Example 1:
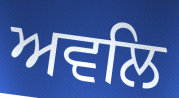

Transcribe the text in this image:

ਅਵਲਿ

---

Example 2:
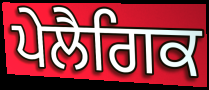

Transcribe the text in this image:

ਪੇਲੈਗਿਕ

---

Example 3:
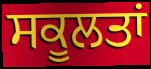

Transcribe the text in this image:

ਸਕੂਲਤਾਂ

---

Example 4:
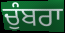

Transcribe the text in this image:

ਚੁੰਬਰਾ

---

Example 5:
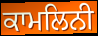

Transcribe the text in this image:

ਕਾਮਲਿਨੀ